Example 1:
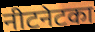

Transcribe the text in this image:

नीटनेटका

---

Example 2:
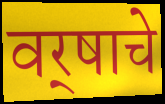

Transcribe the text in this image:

वर्षाचे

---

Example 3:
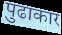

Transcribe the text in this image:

पुढाकार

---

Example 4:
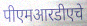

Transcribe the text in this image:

पीएमआरडीएचे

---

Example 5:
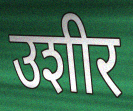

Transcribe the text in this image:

उशीर